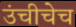
उंचीचेच